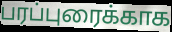
பரப்புரைக்காக